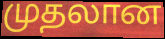
முதலான